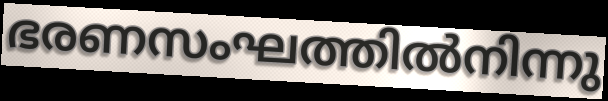
ഭരണസംഘത്തിൽനിന്നു